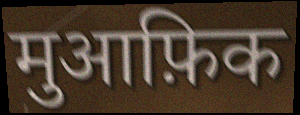
मुआफ़िक